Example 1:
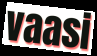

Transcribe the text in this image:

vaasi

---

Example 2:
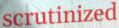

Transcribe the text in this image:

scrutinized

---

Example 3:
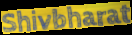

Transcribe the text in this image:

Shivbharat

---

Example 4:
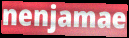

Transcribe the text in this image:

nenjamae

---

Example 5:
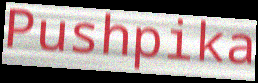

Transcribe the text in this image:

Pushpika